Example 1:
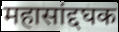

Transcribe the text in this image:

महासांद्दघक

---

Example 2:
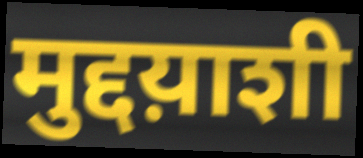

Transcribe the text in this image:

मुद्दय़ाशी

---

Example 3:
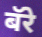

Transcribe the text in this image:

बॅरे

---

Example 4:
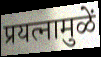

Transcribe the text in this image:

प्रयत्नामुळें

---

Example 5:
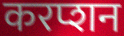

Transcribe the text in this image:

करप्शन